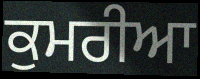
ਕੁਮਰੀਆ